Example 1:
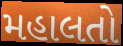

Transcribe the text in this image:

મહાલતો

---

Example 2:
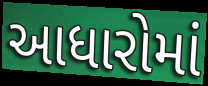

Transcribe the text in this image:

આધારોમાં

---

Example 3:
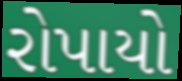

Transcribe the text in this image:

રોપાયો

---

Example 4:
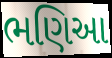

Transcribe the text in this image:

ભણિઆ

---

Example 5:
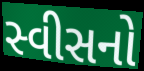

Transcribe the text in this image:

સ્વીસનો